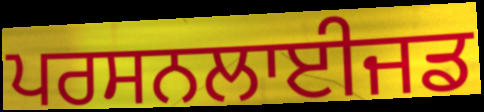
ਪਰਸਨਲਾਈਜਡ